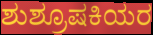
ಶುಶ್ರೂಷಕಿಯರ